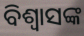
ବିଶ୍ୱାସଙ୍କ